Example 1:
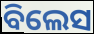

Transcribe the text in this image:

ବିଲେସ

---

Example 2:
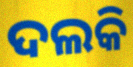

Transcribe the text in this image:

ଦଲକି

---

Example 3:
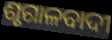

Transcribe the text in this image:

ଶୃଗାଳବାଦୀ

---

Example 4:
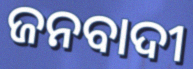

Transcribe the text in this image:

ଜନବାଦୀ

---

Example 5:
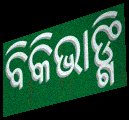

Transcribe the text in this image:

ବିକିଭାଙ୍ଗି